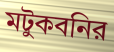
মটুকবনির